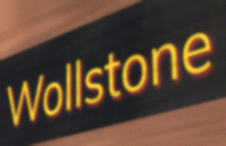
Wollstone